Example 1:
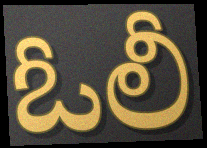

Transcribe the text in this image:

ఓలీ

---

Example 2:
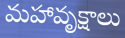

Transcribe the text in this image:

మహావృక్షాలు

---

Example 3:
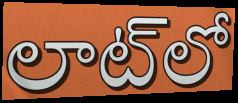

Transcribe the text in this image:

లాట్‌లో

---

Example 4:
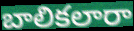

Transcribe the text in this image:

బాలికలారా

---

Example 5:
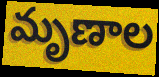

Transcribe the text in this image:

మృణాల